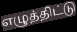
எழுத்திட்டு